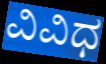
ವಿವಿಧ